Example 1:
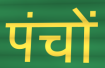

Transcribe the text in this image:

पंचों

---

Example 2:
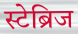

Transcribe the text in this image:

स्टेब्रिज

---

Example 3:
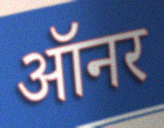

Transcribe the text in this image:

ऑनर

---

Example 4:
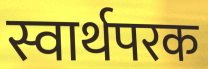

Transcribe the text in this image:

स्वार्थपरक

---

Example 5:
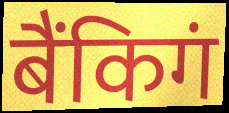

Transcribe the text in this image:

बैंकिगं